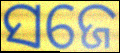
ସଜେ